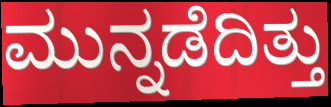
ಮುನ್ನಡೆದಿತ್ತು